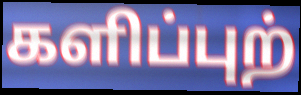
களிப்புற்